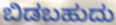
ಬಿಡಬಹುದು